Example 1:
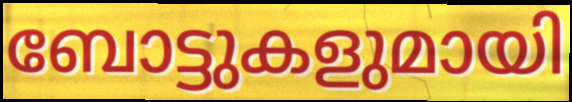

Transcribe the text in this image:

ബോട്ടുകളുമായി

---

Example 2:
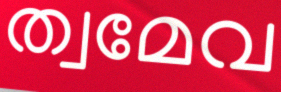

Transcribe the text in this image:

ത്വമേവ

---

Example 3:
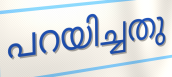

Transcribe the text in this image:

പറയിച്ചതു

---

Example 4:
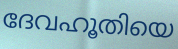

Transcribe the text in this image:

ദേവഹൂതിയെ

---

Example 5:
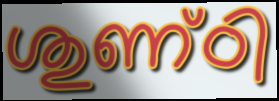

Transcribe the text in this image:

ശുണ്‌ഠി